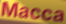
Macca